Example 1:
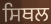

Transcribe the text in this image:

ਸਿਥਲ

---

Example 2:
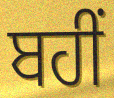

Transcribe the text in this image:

ਬਹੀਂ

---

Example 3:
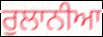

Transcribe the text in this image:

ਰੁਲਾਨੀਆ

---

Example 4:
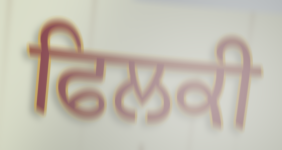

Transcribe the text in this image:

ਫਿਲਕੀ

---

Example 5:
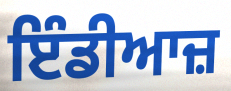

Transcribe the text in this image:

ਇੰਡੀਆਜ਼